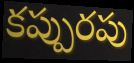
కప్పురపు